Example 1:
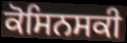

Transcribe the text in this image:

ਕੋਸਿਨਸਕੀ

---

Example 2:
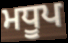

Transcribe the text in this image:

ਮਧੂਪ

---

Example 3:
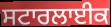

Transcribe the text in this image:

ਸਟਾਰਲਾਈਕ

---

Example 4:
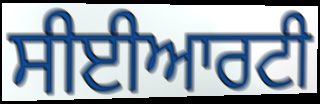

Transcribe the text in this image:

ਸੀਈਆਰਟੀ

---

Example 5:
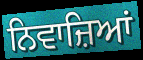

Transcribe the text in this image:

ਨਿਵਾਜ਼ਿਆਂ